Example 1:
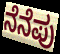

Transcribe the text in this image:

ನೆನೆಪು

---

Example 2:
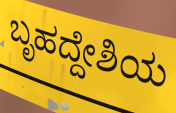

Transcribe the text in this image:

ಬೃಹದ್ದೇಶಿಯ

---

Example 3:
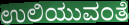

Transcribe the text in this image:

ಉಲಿಯುವಂತೆ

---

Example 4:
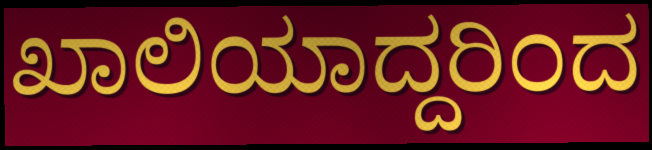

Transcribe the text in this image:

ಖಾಲಿಯಾದ್ದರಿಂದ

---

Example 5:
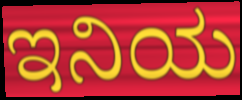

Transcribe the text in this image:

ಇನಿಯ